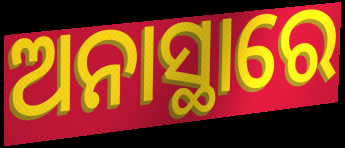
ଅନାସ୍ଥାରେ